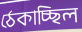
ঠেকাচ্ছিল